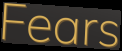
Fears